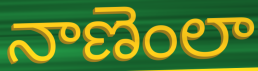
నాణెంలా